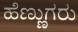
ಹೆಣ್ಣುಗರು